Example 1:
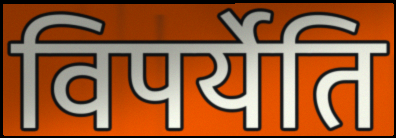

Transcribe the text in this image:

विपर्येति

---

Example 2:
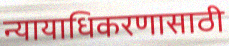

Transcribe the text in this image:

न्यायाधिकरणासाठी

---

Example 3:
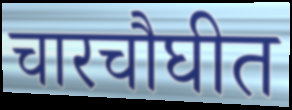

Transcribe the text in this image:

चारचौघीत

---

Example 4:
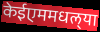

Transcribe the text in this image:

केईएममधल्या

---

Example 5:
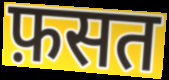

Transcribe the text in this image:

फ़सत